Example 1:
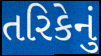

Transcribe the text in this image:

તરિકેનું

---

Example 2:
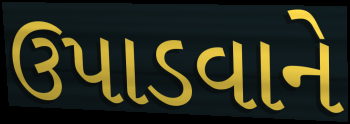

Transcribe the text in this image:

ઉપાડવાને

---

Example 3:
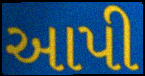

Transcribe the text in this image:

આપી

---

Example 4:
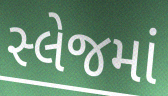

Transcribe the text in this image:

સ્લેજમાં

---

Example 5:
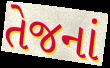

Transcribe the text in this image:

તેજનાં